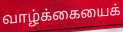
வாழ்க்கையைக்